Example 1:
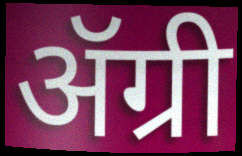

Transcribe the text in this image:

ॲग्री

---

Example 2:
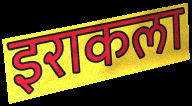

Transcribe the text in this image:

इराकला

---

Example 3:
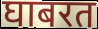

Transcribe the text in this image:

घाबरत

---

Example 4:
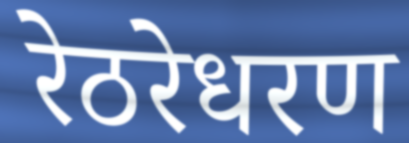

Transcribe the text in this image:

रेठरेधरण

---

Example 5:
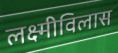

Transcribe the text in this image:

लक्ष्मीविलास